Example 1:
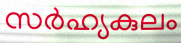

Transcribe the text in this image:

സർഹ്യകുലം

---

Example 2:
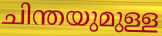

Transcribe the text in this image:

ചിന്തയുമുള്ള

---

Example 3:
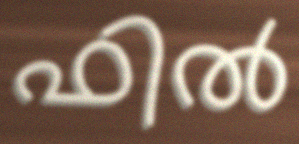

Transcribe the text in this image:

ഫിൽ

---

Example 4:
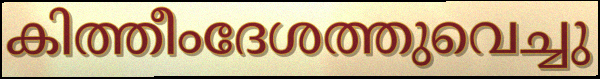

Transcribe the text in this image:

കിത്തീംദേശത്തുവെച്ചു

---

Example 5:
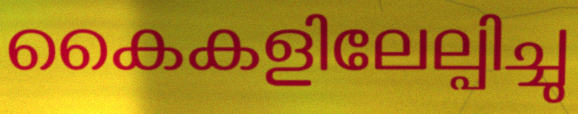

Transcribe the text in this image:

കൈകളിലേല്പിച്ചു